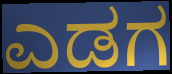
ಎಡಗ